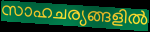
സാഹചര്യങ്ങളിൽ